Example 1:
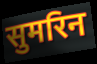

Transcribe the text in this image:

सुमरिन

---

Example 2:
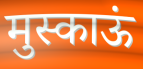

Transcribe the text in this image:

मुस्काऊं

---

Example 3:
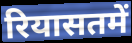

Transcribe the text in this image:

रियासतमें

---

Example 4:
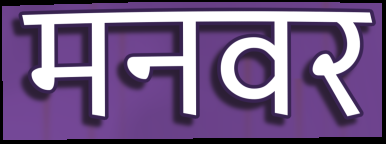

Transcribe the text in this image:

मनवर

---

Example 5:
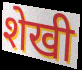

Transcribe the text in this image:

शेखी